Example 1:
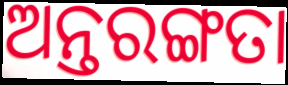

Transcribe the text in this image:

ଅନ୍ତରଙ୍ଗତା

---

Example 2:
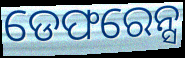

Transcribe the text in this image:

ଡେଫରେନ୍ସ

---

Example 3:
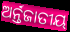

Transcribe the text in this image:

ଅର୍ନ୍ତଜାତୀୟ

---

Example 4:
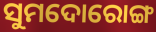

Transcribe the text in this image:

ସୁମଦୋରୋଙ୍ଗ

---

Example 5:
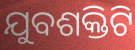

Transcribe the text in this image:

ଯୁବଶକ୍ତିଟି